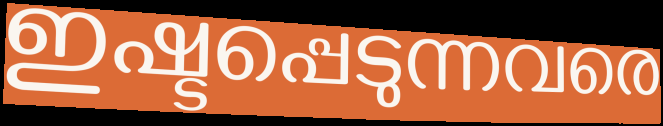
ഇഷ്ടപ്പെടുന്നവരെ